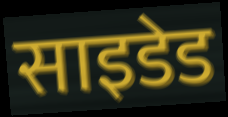
साइडेड